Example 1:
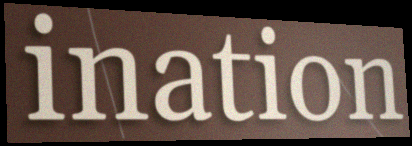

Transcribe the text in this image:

ination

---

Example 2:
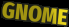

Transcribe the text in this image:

GNOME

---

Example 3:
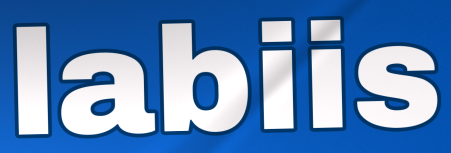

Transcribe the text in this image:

labiis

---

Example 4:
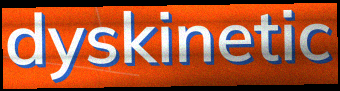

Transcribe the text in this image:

dyskinetic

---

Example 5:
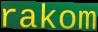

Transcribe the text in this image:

rakom